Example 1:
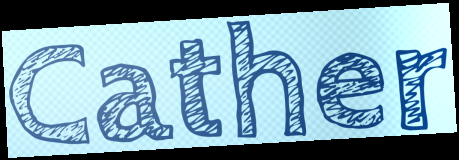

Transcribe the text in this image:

Cather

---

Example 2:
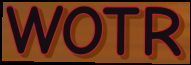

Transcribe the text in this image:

WOTR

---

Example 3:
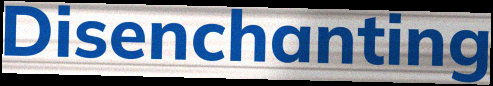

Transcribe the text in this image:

Disenchanting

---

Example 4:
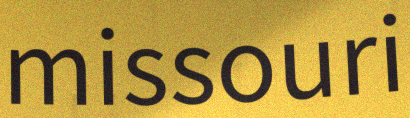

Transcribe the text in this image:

missouri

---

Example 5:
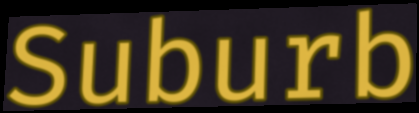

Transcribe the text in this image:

Suburb